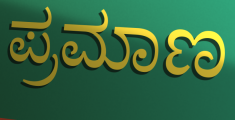
ಪ್ರಮಾಣ